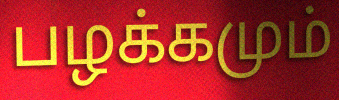
பழக்கமும்